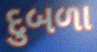
દુબળા